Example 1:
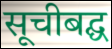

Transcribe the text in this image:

सूचीबद्घ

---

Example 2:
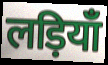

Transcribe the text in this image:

लड़ियाँ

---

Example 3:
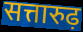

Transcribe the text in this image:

सत्तारुढ़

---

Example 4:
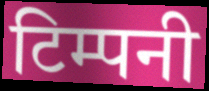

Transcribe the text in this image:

टिम्पनी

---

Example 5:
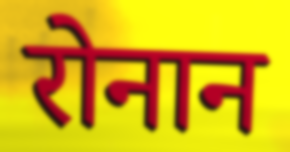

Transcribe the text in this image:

रोनान